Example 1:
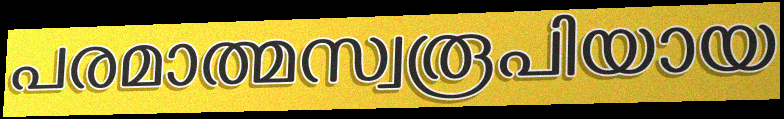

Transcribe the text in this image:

പരമാത്മസ്വരൂപിയായ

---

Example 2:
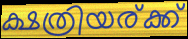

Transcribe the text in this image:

ക്ഷത്രിയര്ക്ക്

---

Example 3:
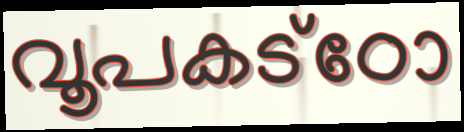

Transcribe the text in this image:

വൂപകട്ഠോ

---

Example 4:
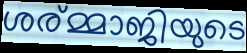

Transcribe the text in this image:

ശര്മ്മാജിയുടെ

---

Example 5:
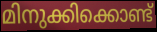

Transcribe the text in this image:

മിനുക്കിക്കൊണ്ട്